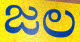
జల